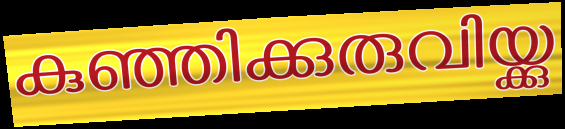
കുഞ്ഞിക്കുരുവിയ്ക്കു